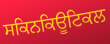
ਸਕਿਨਕਿਊਟਿਕਲ